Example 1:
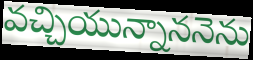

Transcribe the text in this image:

వచ్చియున్నాననెను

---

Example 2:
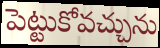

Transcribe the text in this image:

పెట్టుకోవచ్చును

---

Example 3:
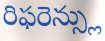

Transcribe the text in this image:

రిఫరెన్స్లు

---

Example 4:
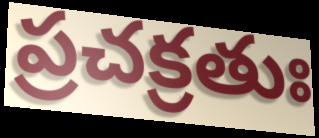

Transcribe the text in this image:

ప్రచక్రతుః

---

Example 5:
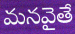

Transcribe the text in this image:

మనవైతే